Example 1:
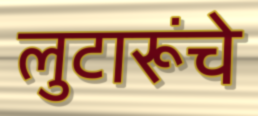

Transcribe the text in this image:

लुटारूंचे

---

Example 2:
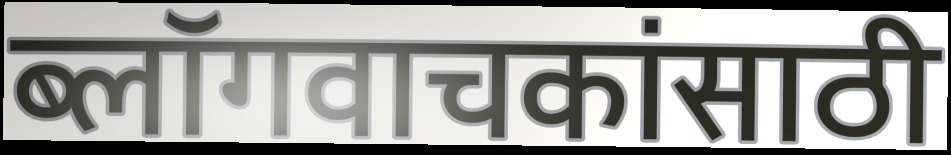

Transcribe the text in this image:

ब्लॉगवाचकांसाठी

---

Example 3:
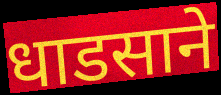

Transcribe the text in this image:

धाडसाने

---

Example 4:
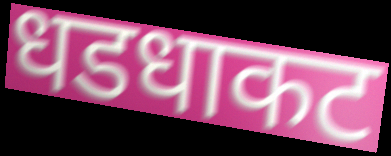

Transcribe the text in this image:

धडधाकट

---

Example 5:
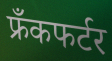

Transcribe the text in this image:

फ्रँकफर्टर